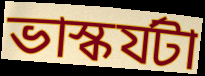
ভাস্কর্যটা